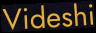
Videshi